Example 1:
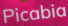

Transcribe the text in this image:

Picabia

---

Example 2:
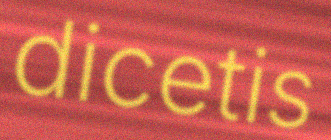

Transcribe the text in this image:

dicetis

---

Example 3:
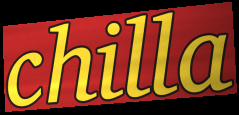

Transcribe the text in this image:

chilla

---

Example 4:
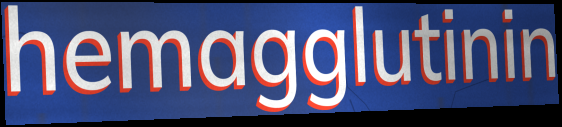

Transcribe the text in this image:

hemagglutinin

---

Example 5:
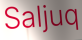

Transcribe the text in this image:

Saljuq